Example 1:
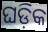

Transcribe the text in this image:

ଘଡ଼ିକ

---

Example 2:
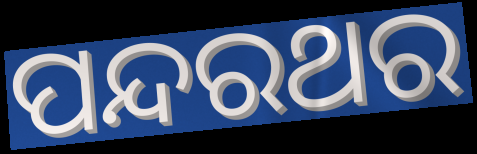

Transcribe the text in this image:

ପନ୍ଦରଥର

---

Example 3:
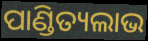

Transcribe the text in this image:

ପାଣ୍ଡିତ୍ୟଲାଭ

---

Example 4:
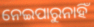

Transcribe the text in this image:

ନେଇପାରୁନାହିଁ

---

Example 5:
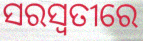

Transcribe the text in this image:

ସରସ୍ୱତୀରେ